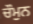
ਚੌਮੁਨ